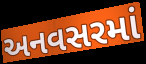
અનવસરમાં